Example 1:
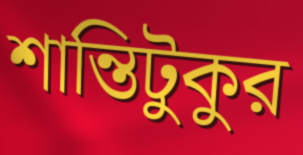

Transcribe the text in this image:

শান্তিটুকুর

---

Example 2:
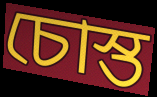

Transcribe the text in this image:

চোস্ত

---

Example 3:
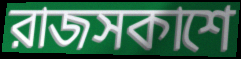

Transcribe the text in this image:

রাজসকাশে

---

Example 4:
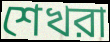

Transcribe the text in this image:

শেখরা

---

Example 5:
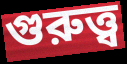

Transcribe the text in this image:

গুরুত্ত্ব